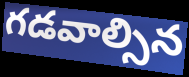
గడవాల్సిన